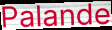
Palande